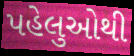
પહેલુઓથી